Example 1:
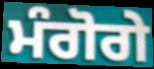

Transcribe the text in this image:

ਮੰਗੋਗੇ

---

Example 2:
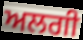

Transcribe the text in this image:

ਅਲਗੀ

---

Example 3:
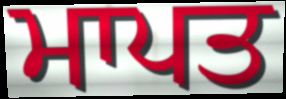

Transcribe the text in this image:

ਮਾਪਤ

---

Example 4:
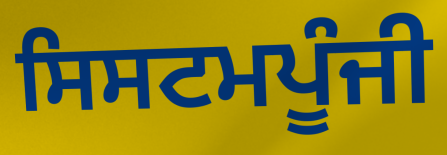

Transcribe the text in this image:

ਸਿਸਟਮਪੂੰਜੀ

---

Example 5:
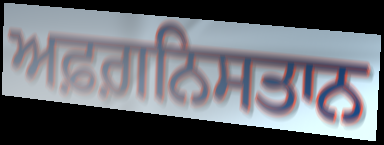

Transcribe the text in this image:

ਅਫ਼ਗ਼ਨਿਸਤਾਨ